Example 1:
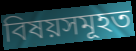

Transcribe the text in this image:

বিষয়সমূহত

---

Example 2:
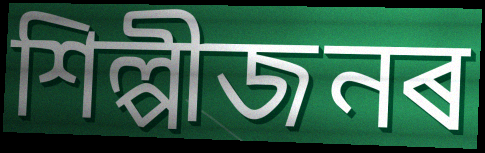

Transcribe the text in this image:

শিল্পীজনৰ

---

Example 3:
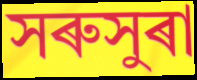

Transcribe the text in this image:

সৰুসুৰা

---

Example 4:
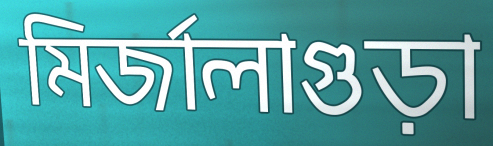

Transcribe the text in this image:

মিৰ্জালাগুড়া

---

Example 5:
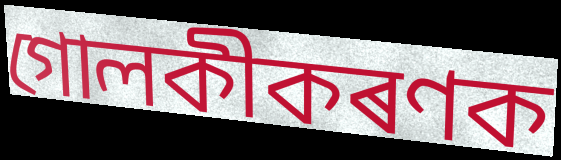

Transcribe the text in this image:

গোলকীকৰণক